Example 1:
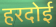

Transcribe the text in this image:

हरदोई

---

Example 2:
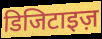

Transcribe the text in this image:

डिजिटाइज़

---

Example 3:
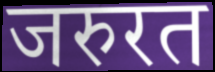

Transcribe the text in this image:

जरुरत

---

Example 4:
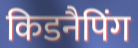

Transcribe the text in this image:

किडनैपिंग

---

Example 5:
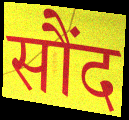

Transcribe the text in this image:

सौंद